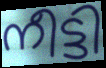
നീട്ടി